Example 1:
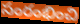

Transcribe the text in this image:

సంరంభించి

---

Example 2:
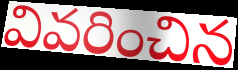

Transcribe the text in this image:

వివరించిన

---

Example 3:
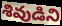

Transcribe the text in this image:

శివుడిని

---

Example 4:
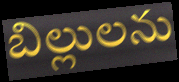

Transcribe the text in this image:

బిల్లులను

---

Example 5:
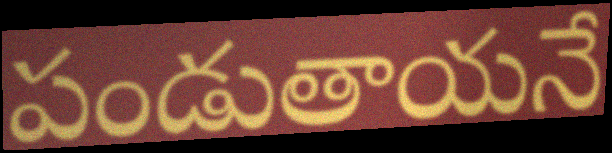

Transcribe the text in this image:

పండుతాయనే